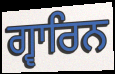
ਗ੍ਵਾਰਿਨ